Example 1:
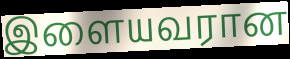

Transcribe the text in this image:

இளையவரான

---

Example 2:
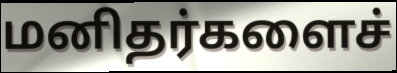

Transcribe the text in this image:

மனிதர்களைச்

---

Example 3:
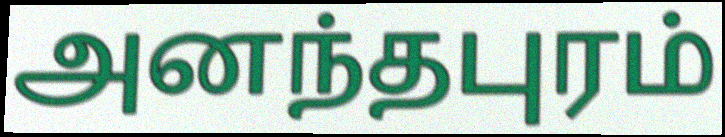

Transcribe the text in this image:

அனந்தபுரம்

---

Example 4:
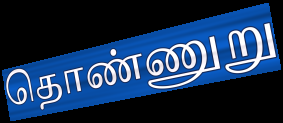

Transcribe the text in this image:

தொண்ணுறு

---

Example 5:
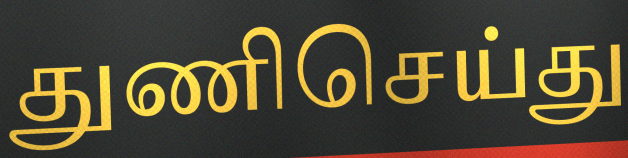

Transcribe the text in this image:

துணிசெய்து